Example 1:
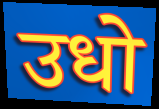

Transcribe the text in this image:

उधो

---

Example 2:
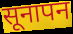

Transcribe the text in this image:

सूनापन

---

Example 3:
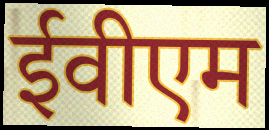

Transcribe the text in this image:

ईवीएम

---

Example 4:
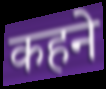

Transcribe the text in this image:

कहने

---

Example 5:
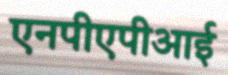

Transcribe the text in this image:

एनपीएपीआई